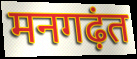
मनगढ़ंत